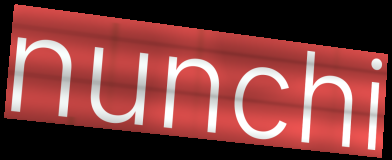
nunchi